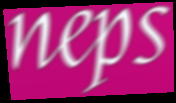
neps